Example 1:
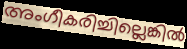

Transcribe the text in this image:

അംഗീകരിച്ചില്ലെങ്കിൽ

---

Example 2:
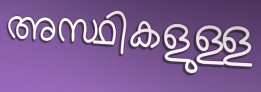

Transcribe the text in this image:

അസ്ഥികളുള്ള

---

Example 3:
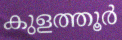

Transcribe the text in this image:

കുളത്തൂർ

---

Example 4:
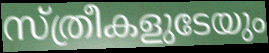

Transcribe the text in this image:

സ്ത്രീകളുടേയും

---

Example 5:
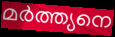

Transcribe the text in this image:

മർത്ത്യനെ